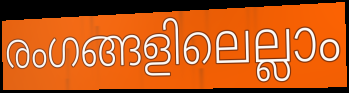
രംഗങ്ങളിലെല്ലാം